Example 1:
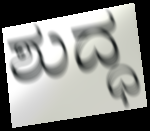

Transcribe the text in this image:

ಶುದ್ಧ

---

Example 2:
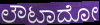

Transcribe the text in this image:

ಲೌಟಾದೋ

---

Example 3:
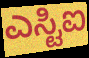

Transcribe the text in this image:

ಎಸ್ಟಿಐ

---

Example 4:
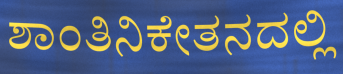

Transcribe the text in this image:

ಶಾಂತಿನಿಕೇತನದಲ್ಲಿ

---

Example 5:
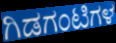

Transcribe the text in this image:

ಗಿಡಗಂಟಿಗಳ